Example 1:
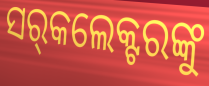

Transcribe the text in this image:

ସର୍‌କଲେକ୍ଟରଙ୍କୁ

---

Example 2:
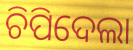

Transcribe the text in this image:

ଚିପିଦେଲା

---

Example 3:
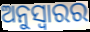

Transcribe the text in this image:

ଅନୁସ୍ଵାରର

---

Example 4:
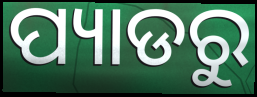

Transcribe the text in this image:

ପ୍ୟାଡରୁ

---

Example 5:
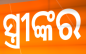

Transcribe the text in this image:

ସ୍ତ୍ରୀଙ୍କର